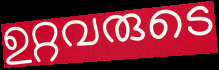
ഉറ്റവരുടെ